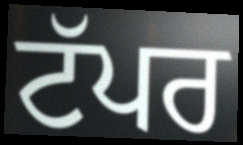
ਟੱਪਰ